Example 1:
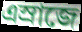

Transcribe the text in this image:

এস্রাজে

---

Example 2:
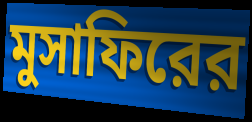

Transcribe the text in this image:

মুসাফিরের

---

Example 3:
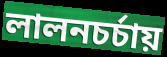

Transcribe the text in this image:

লালনচর্চায়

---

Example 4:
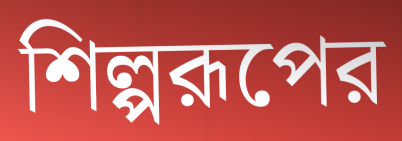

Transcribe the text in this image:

শিল্পরূপের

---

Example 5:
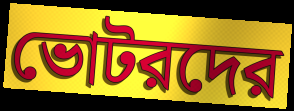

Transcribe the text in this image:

ভোটরদের